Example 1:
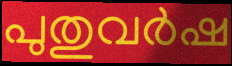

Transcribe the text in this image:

പുതുവർഷ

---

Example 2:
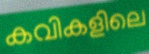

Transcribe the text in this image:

കവികളിലെ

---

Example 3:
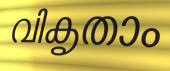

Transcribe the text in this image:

വികൃതാം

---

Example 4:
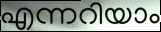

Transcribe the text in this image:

എന്നറിയാം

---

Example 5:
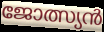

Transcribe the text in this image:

ജോത്സ്യൻ